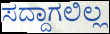
ಸದ್ದಾಗಲಿಲ್ಲ